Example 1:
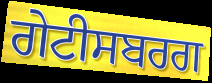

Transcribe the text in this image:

ਗੇਟੀਸਬਰਗ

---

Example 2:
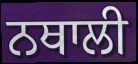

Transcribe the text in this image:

ਨਥਾਲੀ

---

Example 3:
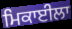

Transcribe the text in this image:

ਮਿਕਾਈਲਾ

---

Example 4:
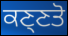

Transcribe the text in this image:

ਕਣ੍ਣਤੋ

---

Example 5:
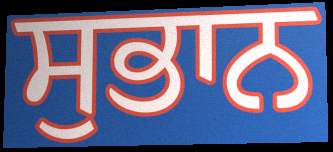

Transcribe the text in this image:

ਸੁਭਾਨ